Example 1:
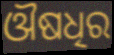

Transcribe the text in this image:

ଔଷଧିର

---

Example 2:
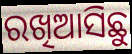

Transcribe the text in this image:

ରଖିଆସିଛୁ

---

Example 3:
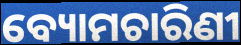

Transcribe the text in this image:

ବ୍ୟୋମଚାରିଣୀ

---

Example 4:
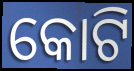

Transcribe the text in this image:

କୋଟି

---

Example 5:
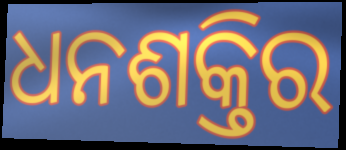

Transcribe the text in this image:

ଧନଶକ୍ତିର